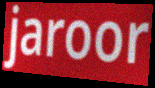
jaroor